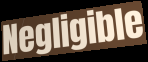
Negligible